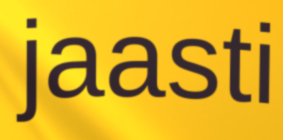
jaasti